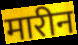
मारीन